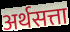
अर्थसत्ता